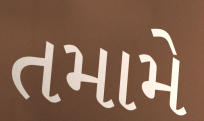
તમામે